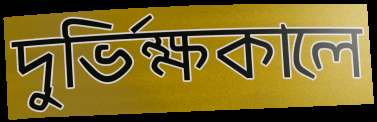
দুর্ভিক্ষকালে